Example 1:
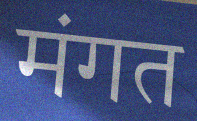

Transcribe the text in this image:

मंगत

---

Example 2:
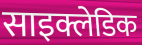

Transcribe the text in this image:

साइक्लेडिक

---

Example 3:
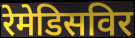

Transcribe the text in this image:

रेमेडिसविर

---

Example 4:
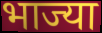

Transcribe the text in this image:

भाज्या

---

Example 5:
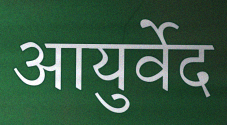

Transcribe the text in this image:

आयुर्वेद